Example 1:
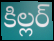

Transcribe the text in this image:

కిల్లర్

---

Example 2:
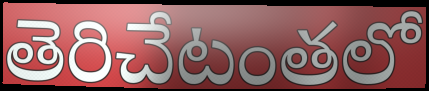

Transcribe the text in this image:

తెరిచేటంతలో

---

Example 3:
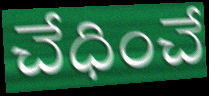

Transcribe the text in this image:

చేధించే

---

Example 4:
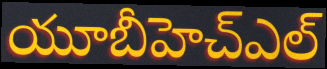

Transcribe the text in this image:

యూబీహెచ్ఎల్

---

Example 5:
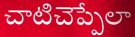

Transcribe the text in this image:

చాటిచెప్పేలా